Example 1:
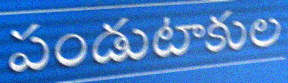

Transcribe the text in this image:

పండుటాకుల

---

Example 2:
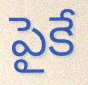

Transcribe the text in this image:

పైకే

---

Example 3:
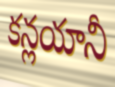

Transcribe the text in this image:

కన్లయానీ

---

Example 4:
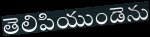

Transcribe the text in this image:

తెలిపియుండెను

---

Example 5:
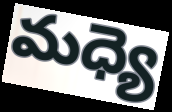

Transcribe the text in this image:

మధ్యె